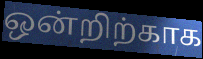
ஒன்றிற்காக